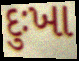
દુઃખા